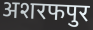
अशरफपुर